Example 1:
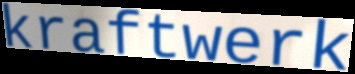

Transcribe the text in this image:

kraftwerk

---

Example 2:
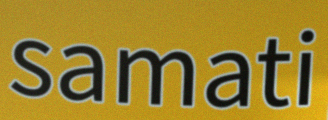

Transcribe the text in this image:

samati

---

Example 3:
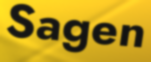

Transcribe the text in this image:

Sagen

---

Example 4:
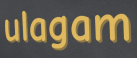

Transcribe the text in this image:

ulagam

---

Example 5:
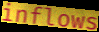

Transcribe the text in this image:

inflows